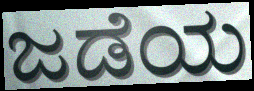
ಜಡೆಯ